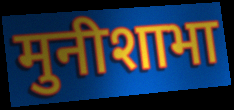
मुनीशाभा